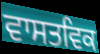
ਵਾਸਤਵਿਕ